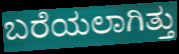
ಬರೆಯಲಾಗಿತ್ತು